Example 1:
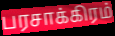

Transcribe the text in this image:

பரசாக்கிரம்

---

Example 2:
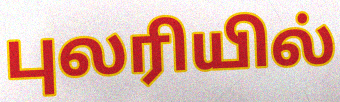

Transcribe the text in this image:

புலரியில்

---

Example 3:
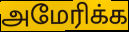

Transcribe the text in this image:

அமேரிக்க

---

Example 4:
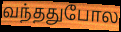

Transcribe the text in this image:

வந்ததுபோல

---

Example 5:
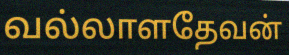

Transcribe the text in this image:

வல்லாளதேவன்